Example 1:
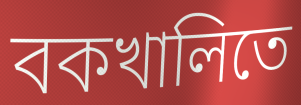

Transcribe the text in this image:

বকখালিতে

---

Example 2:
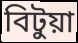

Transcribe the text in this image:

বিটুয়া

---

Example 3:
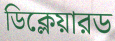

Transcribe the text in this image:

ডিক্লেয়ারড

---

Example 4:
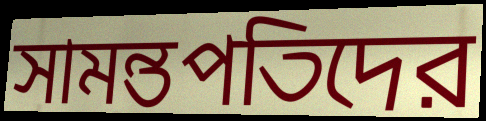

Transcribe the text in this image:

সামন্তপতিদের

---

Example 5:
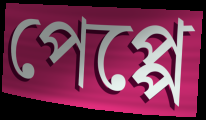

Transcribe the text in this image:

পেপ্পে